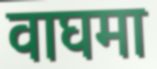
वाघमा